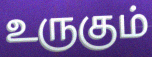
உருகும்